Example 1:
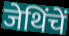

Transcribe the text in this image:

जेथिंचें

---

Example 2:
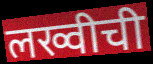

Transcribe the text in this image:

लख्वीची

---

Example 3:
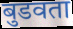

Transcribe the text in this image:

बुडवता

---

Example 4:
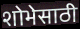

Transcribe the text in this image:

शोभेसाठी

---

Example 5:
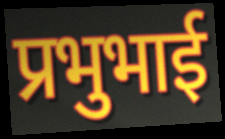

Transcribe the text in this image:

प्रभुभाई